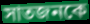
সাতজনকে